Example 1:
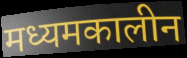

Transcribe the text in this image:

मध्यमकालीन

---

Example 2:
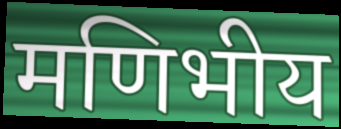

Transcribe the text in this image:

मणिभीय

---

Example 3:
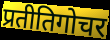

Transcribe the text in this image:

प्रतीतिगोचर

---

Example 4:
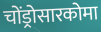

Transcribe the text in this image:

चोंड्रोसारकोमा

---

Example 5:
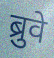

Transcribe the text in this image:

ब्रुवे